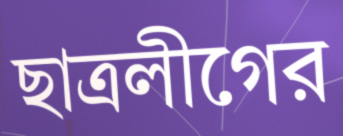
ছাত্রলীগের